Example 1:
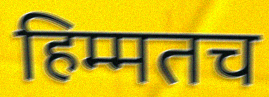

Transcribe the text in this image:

हिम्मतच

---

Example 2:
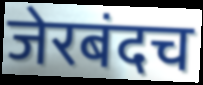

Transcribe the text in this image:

जेरबंदच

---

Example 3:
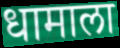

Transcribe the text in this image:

धामाला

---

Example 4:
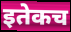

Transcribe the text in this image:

इतेकच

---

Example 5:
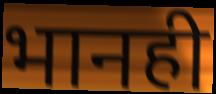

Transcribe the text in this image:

भानही